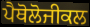
ਪੈਥੋਲੋਜੀਕਲ